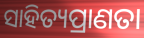
ସାହିତ୍ୟପ୍ରାଣତା